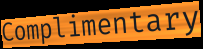
Complimentary